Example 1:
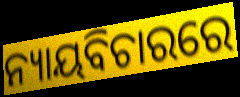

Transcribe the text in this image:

ନ୍ୟାୟବିଚାରରେ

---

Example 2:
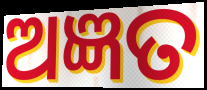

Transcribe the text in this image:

ଅଜ୍ଞତ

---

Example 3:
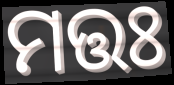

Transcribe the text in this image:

ମତ୍ତଃ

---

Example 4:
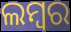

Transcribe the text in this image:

ଲମ୍ୱର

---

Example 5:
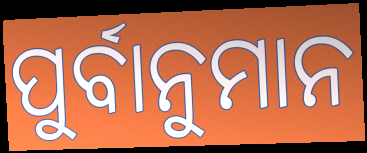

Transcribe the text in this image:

ପୁର୍ବାନୁମାନ